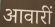
आवारीं